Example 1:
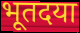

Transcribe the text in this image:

भूतदया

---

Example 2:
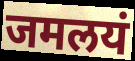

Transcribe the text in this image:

जमलयं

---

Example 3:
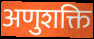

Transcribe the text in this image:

अणुशक्ति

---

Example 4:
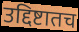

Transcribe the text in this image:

उद्दिष्टातच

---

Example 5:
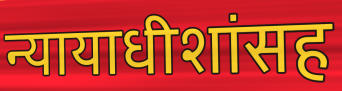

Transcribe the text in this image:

न्यायाधीशांसह